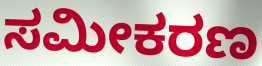
ಸಮೀಕರಣ